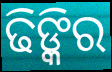
ଢିଙ୍କିର